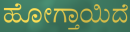
ಹೋಗ್ತಾಯಿದೆ